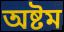
অষ্টম